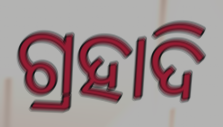
ଗ୍ରହାଦି